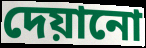
দেয়ানো